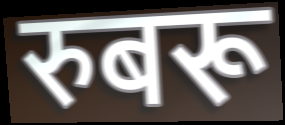
रुबरू